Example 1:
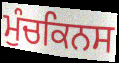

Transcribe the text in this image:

ਮੁੰਚਕਿਨਸ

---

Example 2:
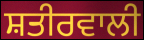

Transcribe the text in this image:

ਸ਼ਤੀਰਵਾਲੀ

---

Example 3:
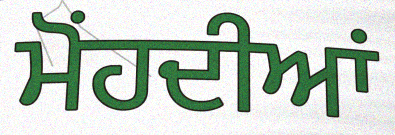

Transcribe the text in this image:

ਮੋਂਹਦੀਆਂ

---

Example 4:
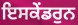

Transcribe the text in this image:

ਇਸਕੇਂਡਰੁਨ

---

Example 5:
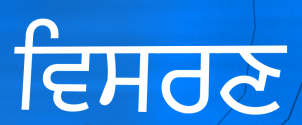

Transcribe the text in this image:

ਵਿਸਰਣ